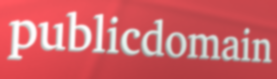
publicdomain